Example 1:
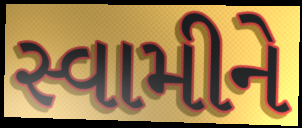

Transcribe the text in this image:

સ્વામીને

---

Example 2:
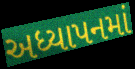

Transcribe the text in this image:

અધ્યાપનમાં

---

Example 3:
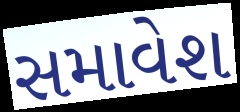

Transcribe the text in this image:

સમાવેશ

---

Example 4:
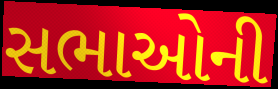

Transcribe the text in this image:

સભાઓની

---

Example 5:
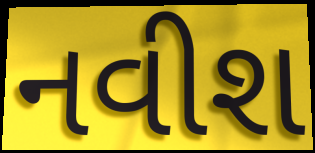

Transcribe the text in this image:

નવીશ